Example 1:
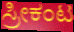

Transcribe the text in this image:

ಸ್ರೀಕಂಟ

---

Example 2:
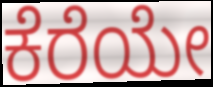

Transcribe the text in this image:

ಕೆರೆಯೇ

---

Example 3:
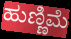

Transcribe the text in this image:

ಹುಣ್ಣಿಮೆ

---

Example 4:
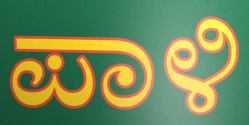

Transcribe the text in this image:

ಪಾಳಿ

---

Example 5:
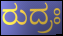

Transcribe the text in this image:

ರುದ್ರಃ